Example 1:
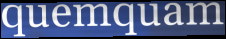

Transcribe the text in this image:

quemquam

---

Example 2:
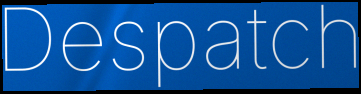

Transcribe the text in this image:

Despatch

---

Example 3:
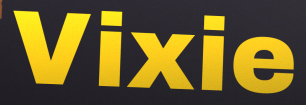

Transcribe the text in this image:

Vixie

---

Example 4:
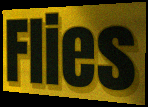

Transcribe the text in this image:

Flies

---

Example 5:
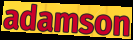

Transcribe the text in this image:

adamson